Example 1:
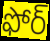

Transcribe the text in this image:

ఫోర్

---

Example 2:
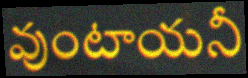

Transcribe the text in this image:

వుంటాయనీ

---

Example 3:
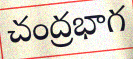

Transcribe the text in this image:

చంద్రభాగ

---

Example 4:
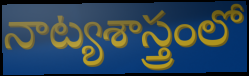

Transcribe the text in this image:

నాట్యశాస్త్రంలో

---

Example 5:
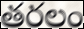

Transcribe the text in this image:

తరలం